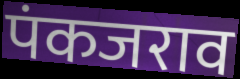
पंकजराव